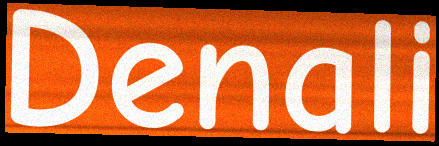
Denali